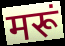
मरूं